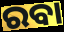
ରବା